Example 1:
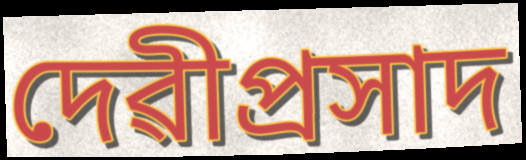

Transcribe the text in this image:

দেৱীপ্ৰসাদ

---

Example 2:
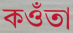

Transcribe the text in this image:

কওঁতা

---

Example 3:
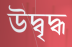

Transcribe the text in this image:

উদ্বৃদ্ধ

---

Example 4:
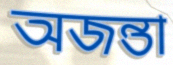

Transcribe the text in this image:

অজন্তা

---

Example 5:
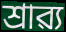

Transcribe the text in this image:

শ্ৰাৱ্য